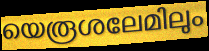
യെരൂശലേമിലും